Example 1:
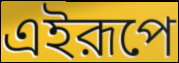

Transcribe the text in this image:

এইরূপে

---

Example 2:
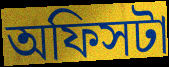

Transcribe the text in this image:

অফিসটা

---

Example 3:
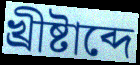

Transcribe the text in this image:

খ্রীষ্টাব্দে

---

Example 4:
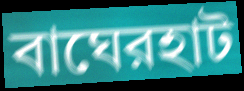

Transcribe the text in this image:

বাঘেরহাট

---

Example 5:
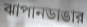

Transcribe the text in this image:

ঝাপানডাঙার